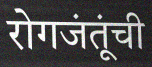
रोगजंतूंची